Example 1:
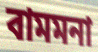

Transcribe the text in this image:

বামমনা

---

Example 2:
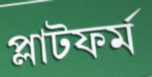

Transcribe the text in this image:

প্লাটফর্ম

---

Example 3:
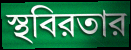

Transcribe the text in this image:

স্থবিরতার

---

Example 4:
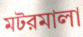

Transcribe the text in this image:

মটরমালা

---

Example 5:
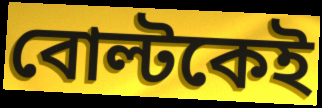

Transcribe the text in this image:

বোল্টকেই